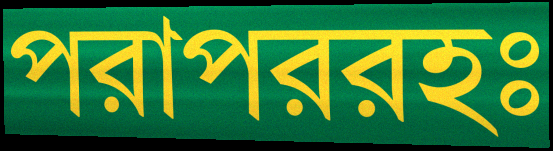
পরাপররহঃ